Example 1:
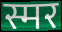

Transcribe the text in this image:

स्मर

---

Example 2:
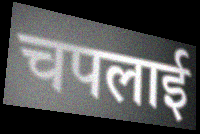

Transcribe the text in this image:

चपलाई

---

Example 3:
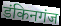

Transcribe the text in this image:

डंकिनगंज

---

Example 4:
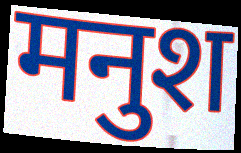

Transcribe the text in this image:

मनुश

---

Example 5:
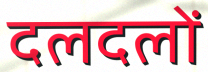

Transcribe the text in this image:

दलदलों